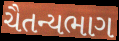
ચૈતન્યભાગ